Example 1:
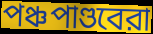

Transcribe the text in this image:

পঞ্চপাণ্ডবেরা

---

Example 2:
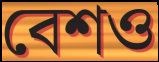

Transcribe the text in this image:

বেশও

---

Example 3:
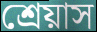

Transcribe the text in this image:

শ্রেয়াস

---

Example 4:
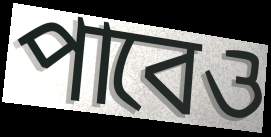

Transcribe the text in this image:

পাবেও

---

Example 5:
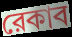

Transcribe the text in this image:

রেকাব